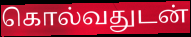
கொல்வதுடன்